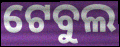
ଟେବୁଲ